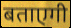
बताएगी